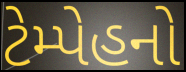
ટેમ્પેહનો